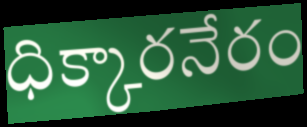
ధిక్కారనేరం